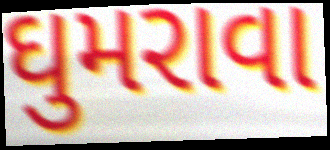
ઘુમરાવા